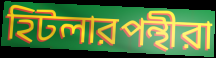
হিটলারপন্থীরা